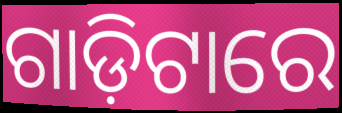
ଗାଡ଼ିଟାରେ